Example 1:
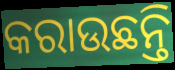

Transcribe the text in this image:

କରାଉଛନ୍ତି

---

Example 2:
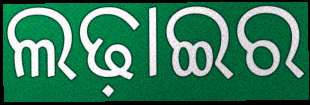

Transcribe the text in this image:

ଲଢ଼ାଇର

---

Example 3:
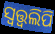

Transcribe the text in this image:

ସ୍ୱତ୍ତ୍ୱଲିପି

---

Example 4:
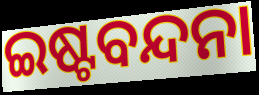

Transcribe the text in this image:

ଇଷ୍ଟବନ୍ଦନା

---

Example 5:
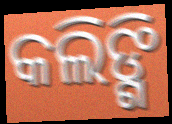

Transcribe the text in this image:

କଲିଙ୍ଗି